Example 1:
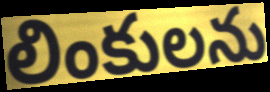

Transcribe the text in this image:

లింకులను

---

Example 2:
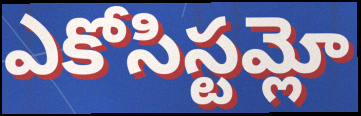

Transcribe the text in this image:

ఎకోసిస్టమ్లో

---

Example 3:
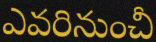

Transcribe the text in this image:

ఎవరినుంచీ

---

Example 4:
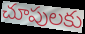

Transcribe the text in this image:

చూపులకు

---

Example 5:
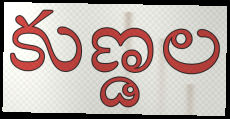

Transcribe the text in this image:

కుణ్డల